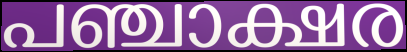
പഞ്ചാക്ഷര